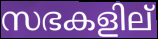
സഭകളില്